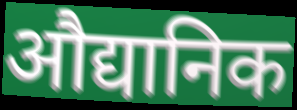
औद्यानिक